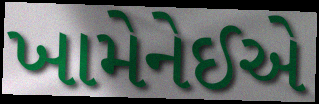
ખામેનેઈએ